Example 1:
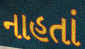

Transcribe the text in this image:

નાહતાં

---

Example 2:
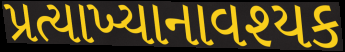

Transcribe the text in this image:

પ્રત્યાખ્યાનાવશ્યક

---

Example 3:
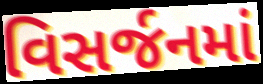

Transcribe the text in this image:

વિસર્જનમાં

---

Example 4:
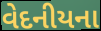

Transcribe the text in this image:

વેદનીયના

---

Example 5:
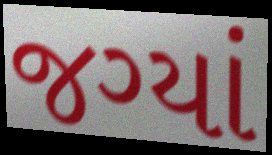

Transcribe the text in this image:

જગ્યાં